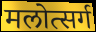
मलोत्सर्ग